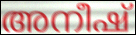
അനീഷ്